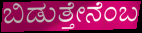
ಬಿಡುತ್ತೇನೆಂಬ